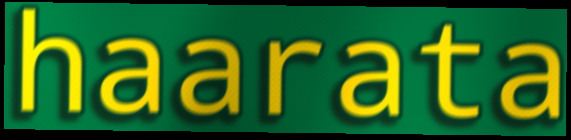
haarata